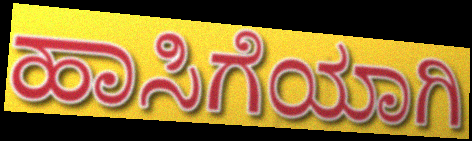
ಹಾಸಿಗೆಯಾಗಿ